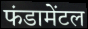
फंडामेंटल